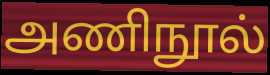
அணிநூல்